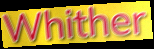
Whither